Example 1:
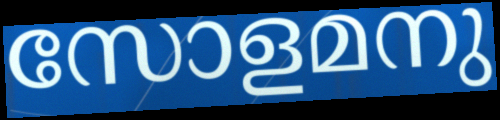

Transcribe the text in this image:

സോളമനു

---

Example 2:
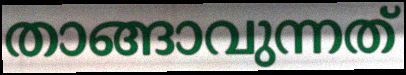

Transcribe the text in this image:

താങ്ങാവുന്നത്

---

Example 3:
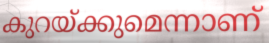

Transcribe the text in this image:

കുറയ്ക്കുമെന്നാണ്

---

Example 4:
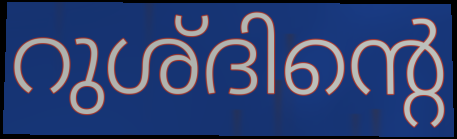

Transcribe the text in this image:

റുശ്ദിന്റെ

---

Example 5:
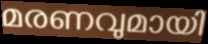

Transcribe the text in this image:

മരണവുമായി